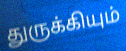
துருக்கியும்